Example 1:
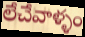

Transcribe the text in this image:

లేచేవాళ్ళం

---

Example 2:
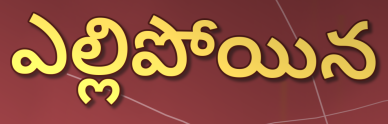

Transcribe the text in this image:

ఎల్లిపోయిన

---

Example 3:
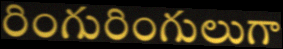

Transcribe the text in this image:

రింగురింగులుగా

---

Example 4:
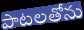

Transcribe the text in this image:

పాటలతోను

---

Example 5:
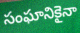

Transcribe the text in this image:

సంఘానికైనా